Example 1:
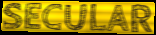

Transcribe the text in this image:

SECULAR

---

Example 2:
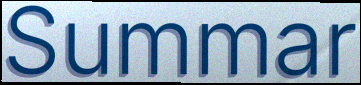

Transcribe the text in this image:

Summar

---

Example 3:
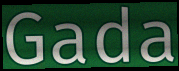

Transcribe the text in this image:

Gada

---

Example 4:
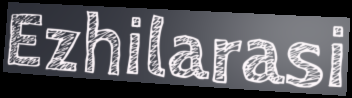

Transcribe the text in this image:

Ezhilarasi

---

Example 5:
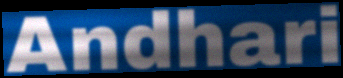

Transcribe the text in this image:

Andhari